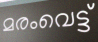
മരംവെട്ട്